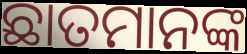
ଛାତମାନଙ୍କ